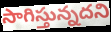
సాగిస్తున్నదని